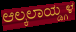
ಆಲ್ಕಲಾಯ್ಡ್ಗಳ